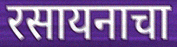
रसायनाचा